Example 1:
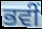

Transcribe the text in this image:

ਭਵੀਂ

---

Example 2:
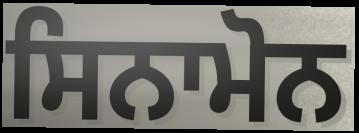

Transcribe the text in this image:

ਸਿਨਾਮੋਨ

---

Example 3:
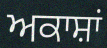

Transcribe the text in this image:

ਅਕਾਸ਼ਾਂ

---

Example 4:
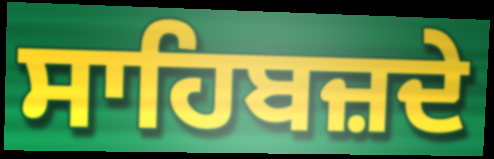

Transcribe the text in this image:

ਸਾਹਿਬਜ਼ਦੇ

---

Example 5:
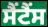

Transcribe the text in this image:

ਸੈਂਟੈਂਸ